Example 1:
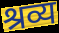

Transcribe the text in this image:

श्रव्य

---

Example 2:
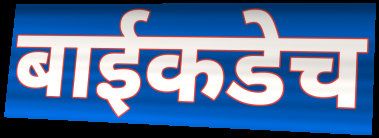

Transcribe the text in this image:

बाईकडेच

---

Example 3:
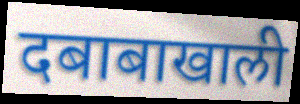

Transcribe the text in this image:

दबाबाखाली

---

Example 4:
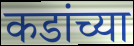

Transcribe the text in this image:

कडांच्या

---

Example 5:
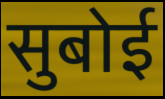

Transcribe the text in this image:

सुबोई